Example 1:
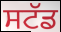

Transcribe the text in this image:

ਸਟੱਡ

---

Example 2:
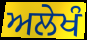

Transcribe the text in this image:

ਅਲੇਖੰ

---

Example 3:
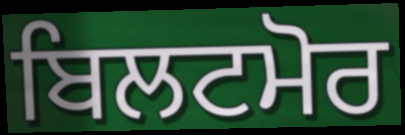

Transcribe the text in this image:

ਬਿਲਟਮੋਰ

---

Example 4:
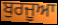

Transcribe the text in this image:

ਬੁਰਜੂਆ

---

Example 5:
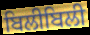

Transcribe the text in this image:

ਬਿਲੀਬਿਲੀ